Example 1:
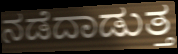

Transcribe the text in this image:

ನಡೆದಾಡುತ್ತ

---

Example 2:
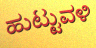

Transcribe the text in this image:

ಹುಟ್ಟುವಳಿ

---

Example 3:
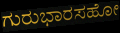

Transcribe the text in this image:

ಗುರುಭಾರಸಹೋ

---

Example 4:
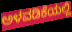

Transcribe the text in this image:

ಅಳವಡಿಕೆಯಲ್ಲಿ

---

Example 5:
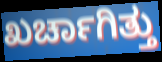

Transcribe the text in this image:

ಖರ್ಚಾಗಿತ್ತು